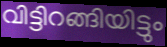
വിട്ടിറങ്ങിയിട്ടും